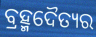
ବ୍ରହ୍ମଦୈତ୍ୟର